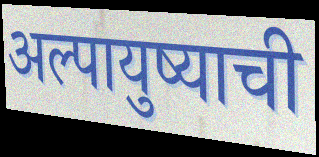
अल्पायुष्याची